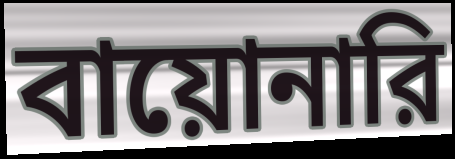
বায়োনারি